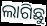
ଲାଗିଛୁ